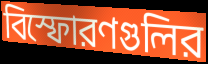
বিস্ফোরণগুলির